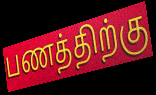
பணத்திற்கு